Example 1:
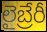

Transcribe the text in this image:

లైబ్రేరీ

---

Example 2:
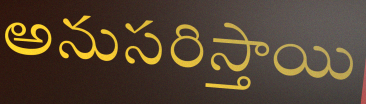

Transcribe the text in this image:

అనుసరిస్తాయి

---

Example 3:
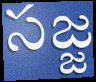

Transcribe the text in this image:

సజ్జ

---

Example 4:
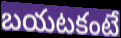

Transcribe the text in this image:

బయటకంటే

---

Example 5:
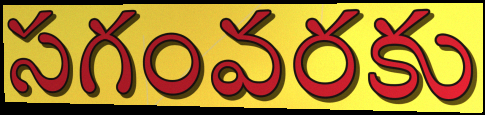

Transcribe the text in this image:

సగంవరకు